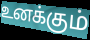
உனக்கும்